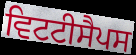
ਵਿਟਟੀਸੈਪਸ